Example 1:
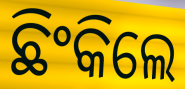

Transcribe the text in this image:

ଛିଂକିଲେ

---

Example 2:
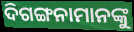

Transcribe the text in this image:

ଦିଗଙ୍ଗନାମାନଙ୍କୁ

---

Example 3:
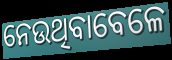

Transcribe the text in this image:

ନେଉଥିବାବେଳେ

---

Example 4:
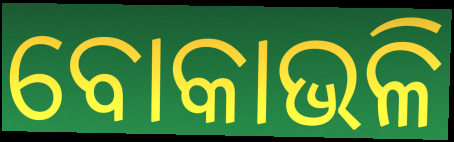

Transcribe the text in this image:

ବୋକାଭଳି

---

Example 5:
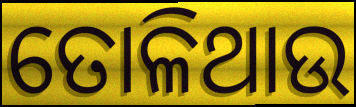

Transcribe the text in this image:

ତୋଳିଥାଉ